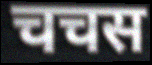
चचस